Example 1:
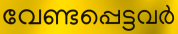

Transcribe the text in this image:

വേണ്ടപ്പെട്ടവർ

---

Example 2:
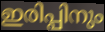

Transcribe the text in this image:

ഇരിപ്പിനും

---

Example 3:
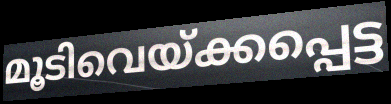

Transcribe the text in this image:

മൂടിവെയ്ക്കപ്പെട്ട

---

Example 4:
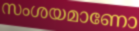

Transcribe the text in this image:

സംശയമാണോ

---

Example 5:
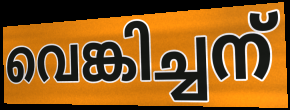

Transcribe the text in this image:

വെങ്കിച്ചന്